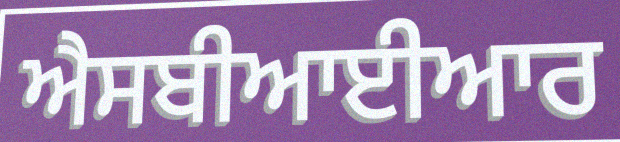
ਐਸਬੀਆਈਆਰ